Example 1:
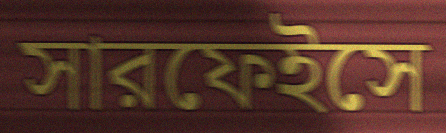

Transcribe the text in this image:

সারফেইসে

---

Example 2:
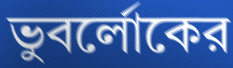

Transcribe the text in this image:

ভুবর্লোকের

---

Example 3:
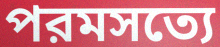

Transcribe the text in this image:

পরমসত্যে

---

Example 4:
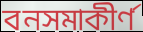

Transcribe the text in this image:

বনসমাকীর্ণ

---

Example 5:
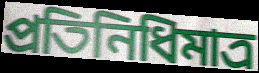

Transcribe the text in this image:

প্রতিনিধিমাত্র